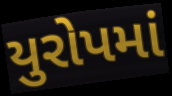
યુરોપમાં